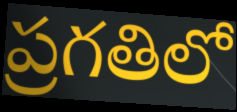
ప్రగతిలో